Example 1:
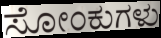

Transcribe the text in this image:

ಸೋಂಕುಗಳು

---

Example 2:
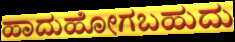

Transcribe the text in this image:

ಹಾದುಹೋಗಬಹುದು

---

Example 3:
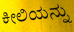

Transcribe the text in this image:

ಕೀಲಿಯನ್ನು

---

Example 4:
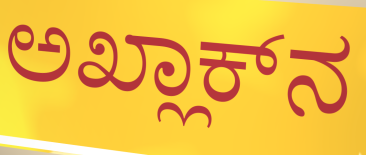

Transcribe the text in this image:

ಅಖ್ಲಾಕ್‍ನ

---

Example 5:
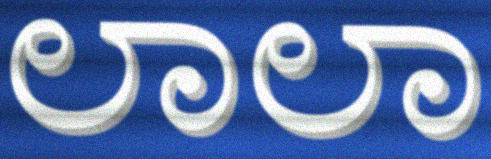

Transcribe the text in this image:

ಲಾಲಾ